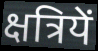
क्षत्रियें